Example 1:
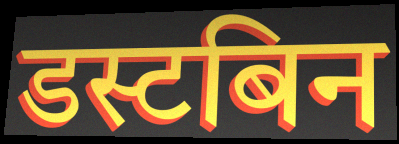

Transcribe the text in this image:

डस्टबिन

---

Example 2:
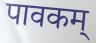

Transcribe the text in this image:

पावकम्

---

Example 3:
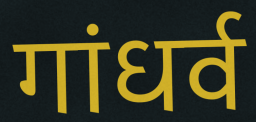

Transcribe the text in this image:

गांधर्व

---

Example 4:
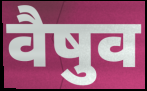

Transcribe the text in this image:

वैषुव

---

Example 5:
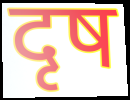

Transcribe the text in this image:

दृष